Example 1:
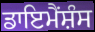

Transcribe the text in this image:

ਡਾਇਮੈਂਸ਼ੰਸ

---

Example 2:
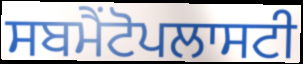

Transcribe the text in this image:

ਸਬਮੈਂਟੋਪਲਾਸਟੀ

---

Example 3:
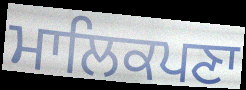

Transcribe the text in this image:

ਮਾਲਿਕਪਣਾ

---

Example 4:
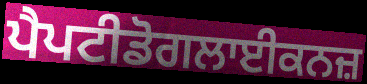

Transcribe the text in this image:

ਪੈਪਟੀਡੋਗਲਾਈਕਨਜ਼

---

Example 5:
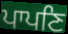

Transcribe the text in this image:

ਪਾਪਣਿ